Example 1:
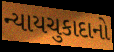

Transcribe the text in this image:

ન્યાયચુકાદાનો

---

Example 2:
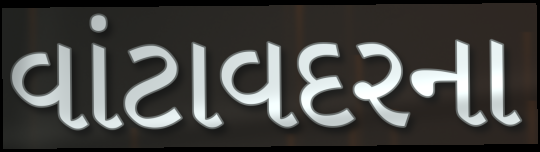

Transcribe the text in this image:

વાંટાવદરના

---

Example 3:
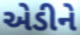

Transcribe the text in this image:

એડીને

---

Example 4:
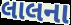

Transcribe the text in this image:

લાલના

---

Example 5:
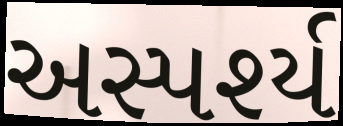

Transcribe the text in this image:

અસ્પર્શ્ય